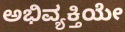
ಅಭಿವ್ಯಕ್ತಿಯೇ